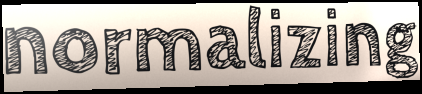
normalizing